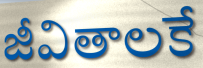
జీవితాలకే